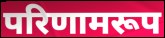
परिणामरूप